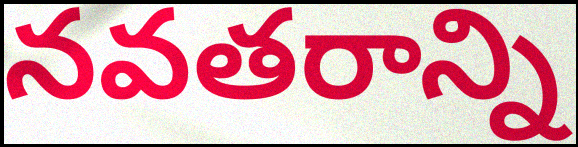
నవతరాన్ని